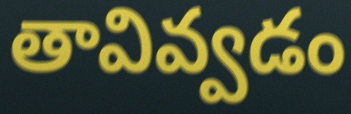
తావివ్వడం